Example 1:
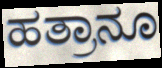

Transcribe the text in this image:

ಹತ್ರಾನೂ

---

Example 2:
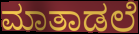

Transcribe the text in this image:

ಮಾತಾಡಲೆ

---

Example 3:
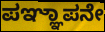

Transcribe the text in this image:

ಪಞ್ಞಾಪನೇ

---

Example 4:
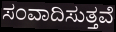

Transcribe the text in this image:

ಸಂವಾದಿಸುತ್ತವೆ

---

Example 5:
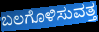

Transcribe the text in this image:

ಬಲಗೊಳಿಸುವತ್ತ